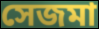
সেজমা